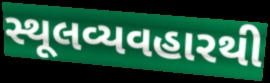
સ્થૂલવ્યવહારથી